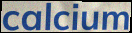
calcium